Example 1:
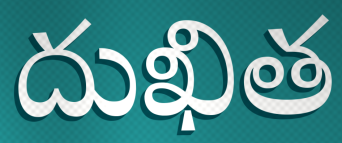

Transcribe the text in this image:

దుఖిత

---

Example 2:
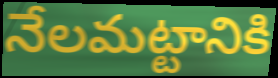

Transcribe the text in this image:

నేలమట్టానికి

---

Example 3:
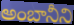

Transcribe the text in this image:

అంబానీని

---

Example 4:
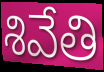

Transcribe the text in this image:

శివేతి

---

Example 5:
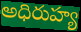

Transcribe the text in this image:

అధిరుహ్య